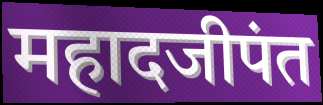
महादजीपंत